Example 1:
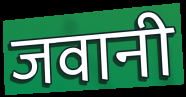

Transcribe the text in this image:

जवानी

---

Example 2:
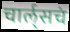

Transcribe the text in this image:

चार्ल्सचं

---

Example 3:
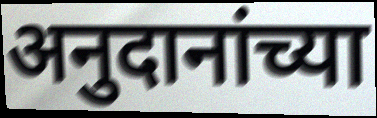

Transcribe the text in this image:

अनुदानांच्या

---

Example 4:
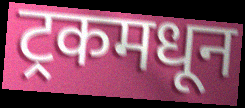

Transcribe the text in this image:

ट्रकमधून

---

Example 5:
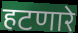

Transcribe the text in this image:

हटणारे